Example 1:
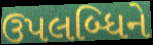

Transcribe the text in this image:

ઉપલબ્ધિને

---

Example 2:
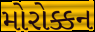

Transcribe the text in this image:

મોરોક્કન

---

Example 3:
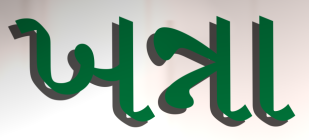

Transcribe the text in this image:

ખન્ના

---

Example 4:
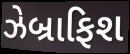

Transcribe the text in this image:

ઝેબ્રાફિશ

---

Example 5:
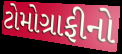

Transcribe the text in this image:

ટોમોગ્રાફીનો